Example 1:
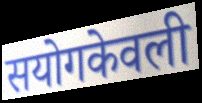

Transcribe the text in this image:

सयोगकेवली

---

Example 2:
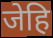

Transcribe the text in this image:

जेहि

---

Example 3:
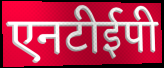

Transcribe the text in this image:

एनटीईपी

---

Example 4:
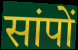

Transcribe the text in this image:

सांपों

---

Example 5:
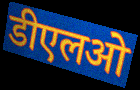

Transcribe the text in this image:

डीएलओ